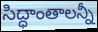
సిద్ధాంతాలన్నీ